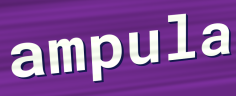
ampula